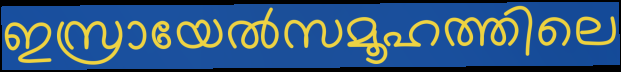
ഇസ്രായേൽസമൂഹത്തിലെ